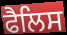
ਫੈਲਿਸ